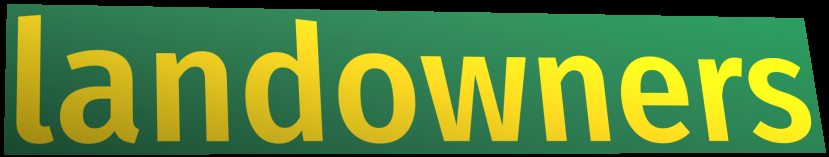
landowners